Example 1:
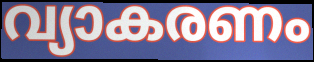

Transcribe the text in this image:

വ്യാകരണം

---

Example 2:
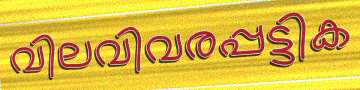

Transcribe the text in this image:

വിലവിവരപ്പട്ടിക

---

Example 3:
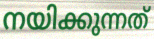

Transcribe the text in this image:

നയിക്കുന്നത്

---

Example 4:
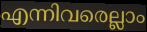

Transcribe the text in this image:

എന്നിവരെല്ലാം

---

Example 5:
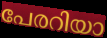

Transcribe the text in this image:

പേരറിയാ